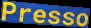
Presso